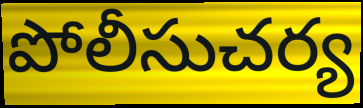
పోలీసుచర్య